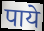
पाये